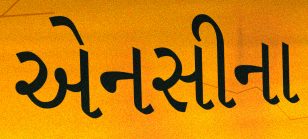
એનસીના